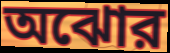
অঝোর